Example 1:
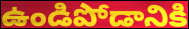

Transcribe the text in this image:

ఉండిపోడానికి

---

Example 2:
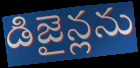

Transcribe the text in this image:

డిజైన్లను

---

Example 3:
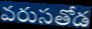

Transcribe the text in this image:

వరుసతోడ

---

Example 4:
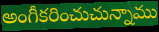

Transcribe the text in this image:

అంగీకరించుచున్నాము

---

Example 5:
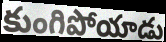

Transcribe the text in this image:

కుంగిపోయాడు